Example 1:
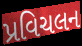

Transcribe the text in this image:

પ્રવિચલન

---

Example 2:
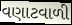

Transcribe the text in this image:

વણાટવાળી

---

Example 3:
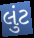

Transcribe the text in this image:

લુંટ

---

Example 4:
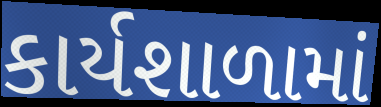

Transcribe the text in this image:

કાર્યશાળામાં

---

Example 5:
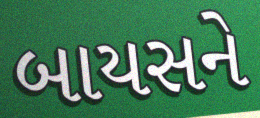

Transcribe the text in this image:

બાયસને